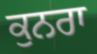
ਕੁਨਰਾ